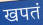
खपतं